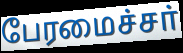
பேரமைச்சர்